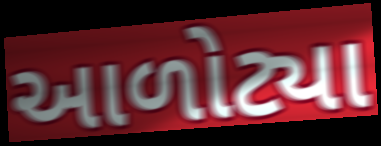
આળોટ્યા